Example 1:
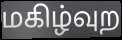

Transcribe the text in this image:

மகிழ்வுற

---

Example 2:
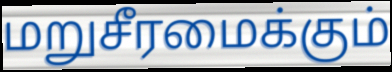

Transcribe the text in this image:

மறுசீரமைக்கும்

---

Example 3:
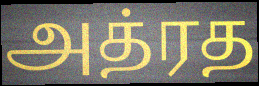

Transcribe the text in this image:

அத்ரத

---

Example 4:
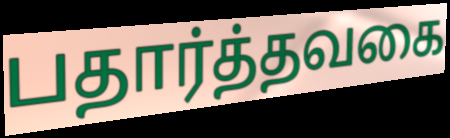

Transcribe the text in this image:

பதார்த்தவகை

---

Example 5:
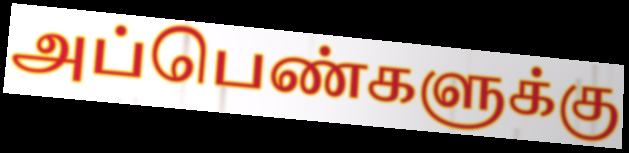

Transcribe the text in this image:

அப்பெண்களுக்கு